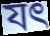
যৎ